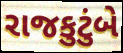
રાજકુટુંબે